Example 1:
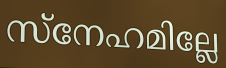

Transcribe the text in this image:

സ്നേഹമില്ലേ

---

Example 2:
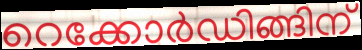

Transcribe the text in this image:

റെക്കോർഡിങ്ങിന്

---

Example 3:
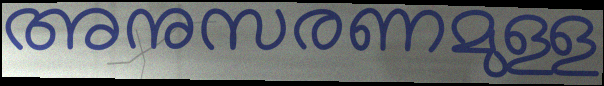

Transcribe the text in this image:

അനുസരണമുള്ള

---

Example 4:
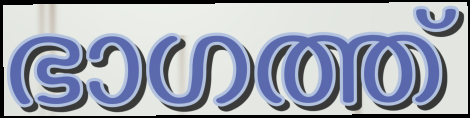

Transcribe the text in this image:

ഭാഗത്ത്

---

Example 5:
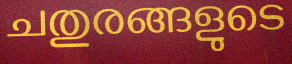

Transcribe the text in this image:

ചതുരങ്ങളുടെ